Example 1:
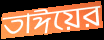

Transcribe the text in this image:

তাঈয়ের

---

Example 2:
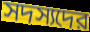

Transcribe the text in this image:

সদস্যদের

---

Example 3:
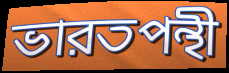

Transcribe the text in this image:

ভারতপন্থী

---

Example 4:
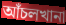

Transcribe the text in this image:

আঁচলখানা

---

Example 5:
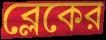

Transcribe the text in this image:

ব্লেকের